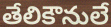
తేలికౌనులే